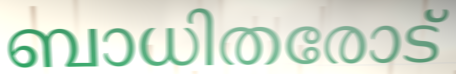
ബാധിതരോട്